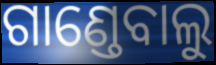
ଗାଣ୍ଡେବାଲୁ